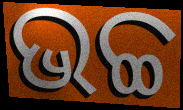
ଭଚ୍ଚ